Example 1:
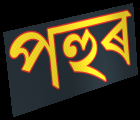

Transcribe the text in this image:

পহুৰ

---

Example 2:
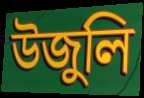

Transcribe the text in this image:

উজুলি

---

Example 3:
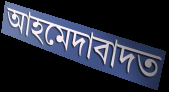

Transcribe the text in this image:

আহমেদাবাদত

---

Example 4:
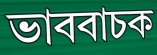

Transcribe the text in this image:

ভাববাচক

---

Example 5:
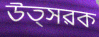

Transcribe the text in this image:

উত্সৱক